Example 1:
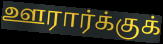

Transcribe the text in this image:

ஊரார்க்குக்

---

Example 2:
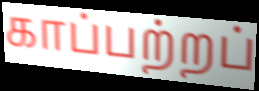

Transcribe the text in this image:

காப்பற்றப்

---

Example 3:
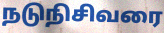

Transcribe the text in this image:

நடுநிசிவரை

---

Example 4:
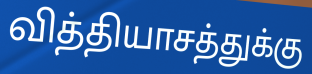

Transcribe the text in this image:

வித்தியாசத்துக்கு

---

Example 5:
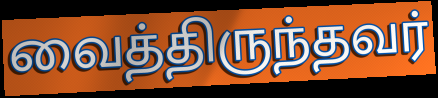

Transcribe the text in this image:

வைத்திருந்தவர்